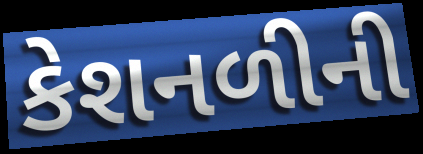
કેશનળીની